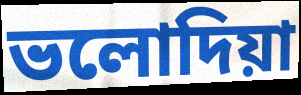
ভলোদিয়া